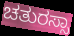
ಚತುರಸ್ಸಾ